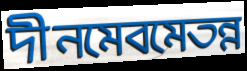
দীনমেবমেতন্ন